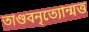
তাণ্ডবনৃত্যোন্মত্ত